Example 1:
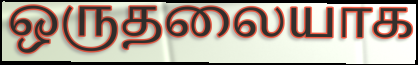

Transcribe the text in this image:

ஒருதலையாக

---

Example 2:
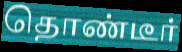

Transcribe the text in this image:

தொண்டீர்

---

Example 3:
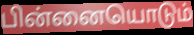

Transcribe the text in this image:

பின்னையொடும்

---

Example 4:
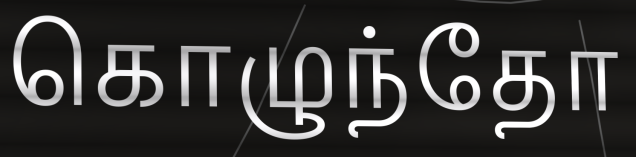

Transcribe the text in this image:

கொழுந்தோ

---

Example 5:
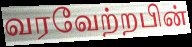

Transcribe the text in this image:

வரவேற்றபின்